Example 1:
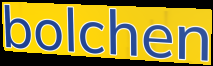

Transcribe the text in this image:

bolchen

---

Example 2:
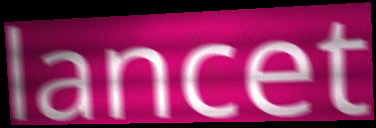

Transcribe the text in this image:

lancet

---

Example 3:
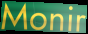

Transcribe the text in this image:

Monir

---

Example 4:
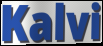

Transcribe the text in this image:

Kalvi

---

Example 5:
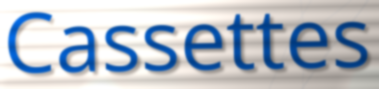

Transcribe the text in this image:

Cassettes